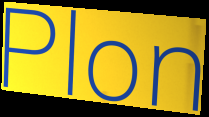
Plon